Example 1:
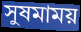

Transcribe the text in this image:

সুষমাময়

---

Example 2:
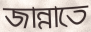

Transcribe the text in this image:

জান্নাতে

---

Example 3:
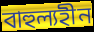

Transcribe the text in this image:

বাহুল্যহীন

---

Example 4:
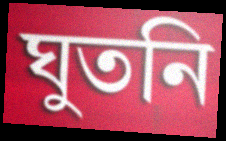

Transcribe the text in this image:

ঘুতনি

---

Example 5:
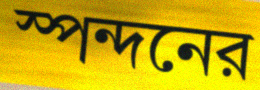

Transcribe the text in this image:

স্পন্দনের